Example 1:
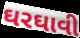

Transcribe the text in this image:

ઘરઘાવી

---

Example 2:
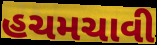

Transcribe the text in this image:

હચમચાવી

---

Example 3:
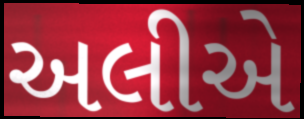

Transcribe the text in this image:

અલીએ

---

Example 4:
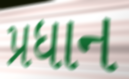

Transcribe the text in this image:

પ્રધાન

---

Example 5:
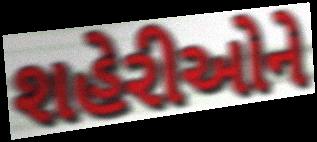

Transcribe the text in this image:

શહેરીઓને